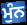
ਮੁੰਨ